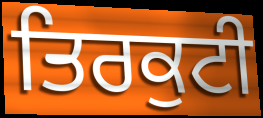
ਤਿਰਕੁਟੀ